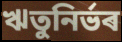
ঋতুনিৰ্ভৰ